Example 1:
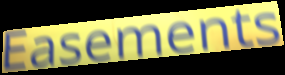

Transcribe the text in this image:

Easements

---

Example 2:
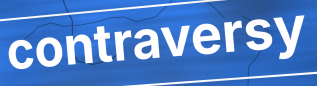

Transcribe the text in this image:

contraversy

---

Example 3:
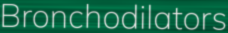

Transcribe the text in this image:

Bronchodilators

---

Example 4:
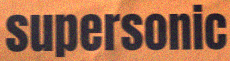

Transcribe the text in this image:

supersonic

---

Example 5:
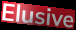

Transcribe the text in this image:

Elusive